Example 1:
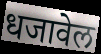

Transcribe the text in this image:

धजावेल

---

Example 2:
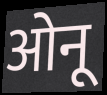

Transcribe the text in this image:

ओनू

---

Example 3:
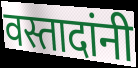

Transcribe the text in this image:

वस्तादांनी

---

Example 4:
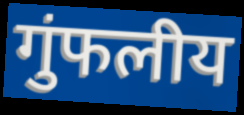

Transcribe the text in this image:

गुंफलीय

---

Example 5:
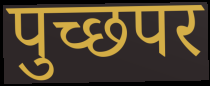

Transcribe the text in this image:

पुच्छपर